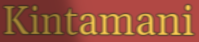
Kintamani